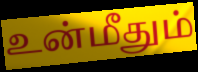
உன்மீதும்